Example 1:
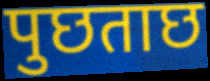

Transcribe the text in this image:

पुछताछ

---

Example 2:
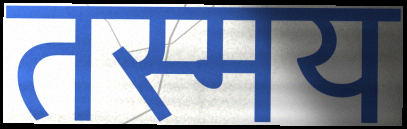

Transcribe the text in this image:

तस्मय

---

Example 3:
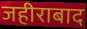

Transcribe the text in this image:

जहीराबाद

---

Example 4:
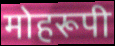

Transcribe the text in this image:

मोहरूपी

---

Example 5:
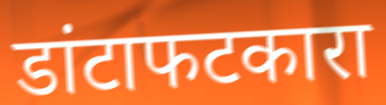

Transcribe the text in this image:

डांटाफटकारा